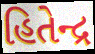
હિતેન્દ્ર